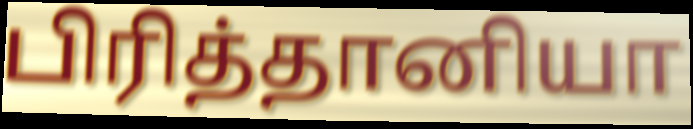
பிரித்தானியா